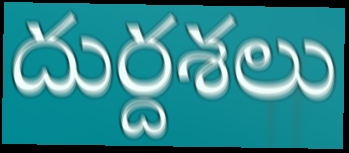
దుర్దశలు